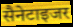
सैनेटाइजर